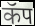
कॅप